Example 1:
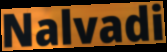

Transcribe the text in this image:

Nalvadi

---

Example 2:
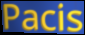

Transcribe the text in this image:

Pacis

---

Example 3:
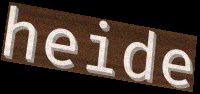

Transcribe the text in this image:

heide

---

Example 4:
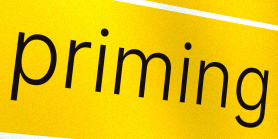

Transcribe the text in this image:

priming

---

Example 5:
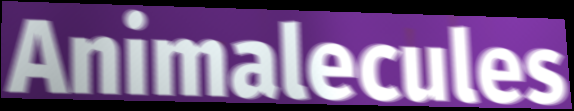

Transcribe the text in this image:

Animalecules